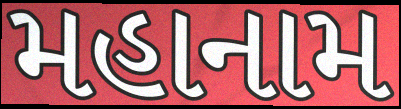
મહાનામ